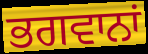
ਭਗਵਾਨਾਂ